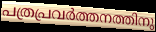
പത്രപ്രവർത്തനത്തിനു